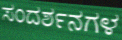
ಸಂದರ್ಶನಗಳ